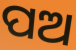
ପଅ